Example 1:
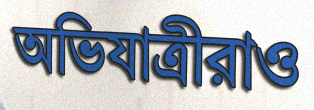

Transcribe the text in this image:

অভিযাত্রীরাও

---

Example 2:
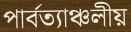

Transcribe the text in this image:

পার্বত্যাঞ্চলীয়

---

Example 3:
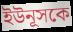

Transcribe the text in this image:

ইউনূসকে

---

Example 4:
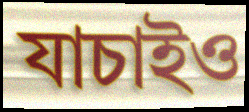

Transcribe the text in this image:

যাচাইও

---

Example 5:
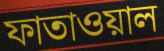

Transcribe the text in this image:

ফাতাওয়াল